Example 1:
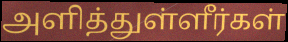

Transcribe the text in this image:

அளித்துள்ளீர்கள்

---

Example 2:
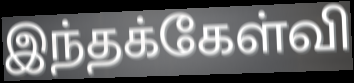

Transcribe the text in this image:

இந்தக்கேள்வி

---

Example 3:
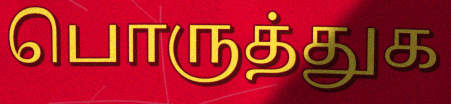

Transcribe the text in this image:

பொருத்துக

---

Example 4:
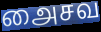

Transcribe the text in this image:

அைசவ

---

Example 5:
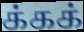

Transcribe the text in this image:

க்கக்